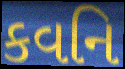
કવનિ